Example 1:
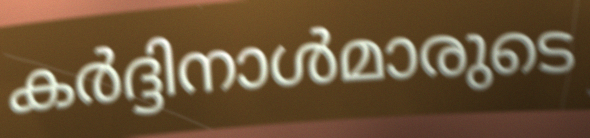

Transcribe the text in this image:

കർദ്ദിനാൾമാരുടെ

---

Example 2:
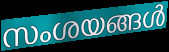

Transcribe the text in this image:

സംശയങ്ങൾ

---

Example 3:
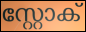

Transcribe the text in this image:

സ്റ്റോക്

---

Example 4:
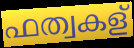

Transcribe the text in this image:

ഫത്വകള്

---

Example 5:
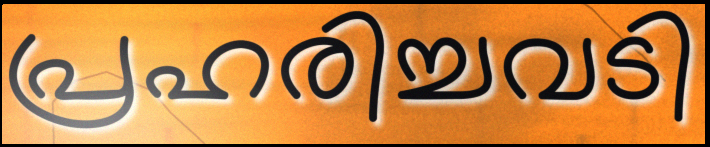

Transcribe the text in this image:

പ്രഹരിച്ചവടി